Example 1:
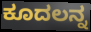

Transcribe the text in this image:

ಕೂದಲನ್ನ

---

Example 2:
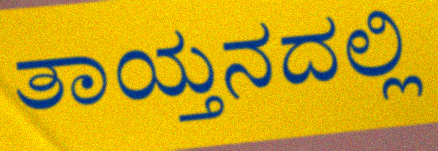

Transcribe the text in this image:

ತಾಯ್ತನದಲ್ಲಿ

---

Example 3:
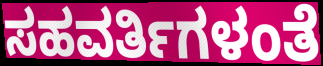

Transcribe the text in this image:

ಸಹವರ್ತಿಗಳಂತೆ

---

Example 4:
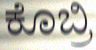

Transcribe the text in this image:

ಕೊಬ್ರಿ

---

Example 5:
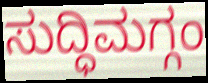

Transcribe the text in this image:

ಸುದ್ಧಿಮಗ್ಗಂ